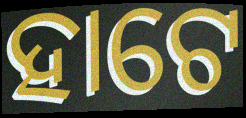
ହାଟେ